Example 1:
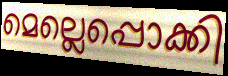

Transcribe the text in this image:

മെല്ലെപ്പൊക്കി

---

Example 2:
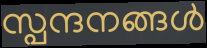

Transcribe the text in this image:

സ്പന്ദനങ്ങൾ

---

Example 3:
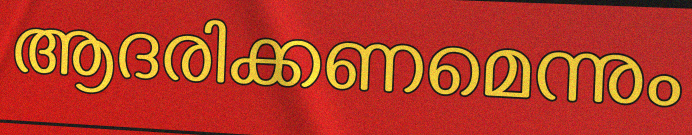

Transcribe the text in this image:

ആദരിക്കണമെന്നും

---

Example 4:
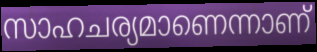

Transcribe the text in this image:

സാഹചര്യമാണെന്നാണ്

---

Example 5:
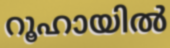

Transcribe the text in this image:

റൂഹായിൽ